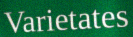
Varietates